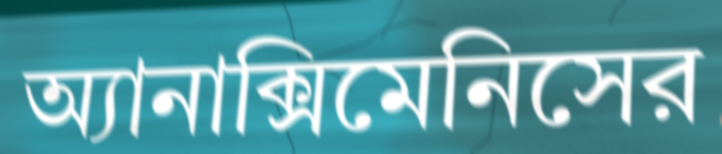
অ্যানাক্সিমেনিসের